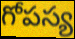
గోపస్య